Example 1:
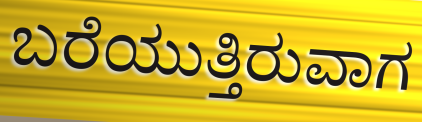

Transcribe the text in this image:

ಬರೆಯುತ್ತಿರುವಾಗ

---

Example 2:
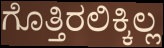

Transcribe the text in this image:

ಗೊತ್ತಿರಲಿಕ್ಕಿಲ್ಲ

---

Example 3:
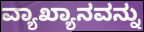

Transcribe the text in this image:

ವ್ಯಾಖ್ಯಾನವನ್ನು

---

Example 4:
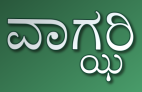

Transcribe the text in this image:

ವಾಗ್ಝರಿ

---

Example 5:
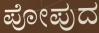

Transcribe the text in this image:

ಪೋಪುದ